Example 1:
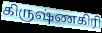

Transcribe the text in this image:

கிருஷ்ணகிரி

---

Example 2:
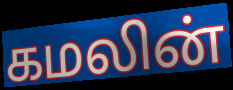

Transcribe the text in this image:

கமலின்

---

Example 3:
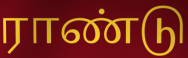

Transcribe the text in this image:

ராண்டு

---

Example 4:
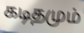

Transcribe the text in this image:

கடிதமும்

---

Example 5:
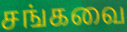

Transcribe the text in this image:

சங்கவை